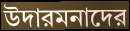
উদারমনাদের